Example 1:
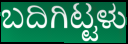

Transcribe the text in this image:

ಬದಿಗಿಟ್ಟಳು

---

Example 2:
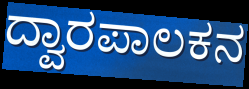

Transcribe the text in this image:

ದ್ವಾರಪಾಲಕನ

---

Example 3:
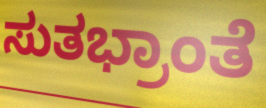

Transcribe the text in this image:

ಸುತಭ್ರಾಂತೆ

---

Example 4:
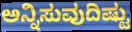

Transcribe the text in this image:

ಅನ್ನಿಸುವುದಿಷ್ಟು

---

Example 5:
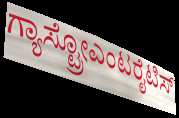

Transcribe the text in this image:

ಗ್ಯಾಸ್ಟ್ರೋಎಂಟರೈಟಿಸ್